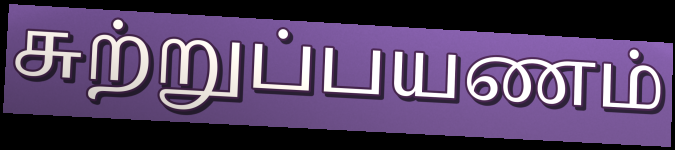
சுற்றுப்பயணம்